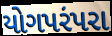
યોગપરંપરા